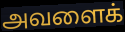
அவளைக்